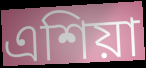
এশিয়া